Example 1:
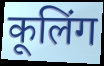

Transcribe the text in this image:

कूलिंग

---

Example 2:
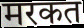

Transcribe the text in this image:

मरकत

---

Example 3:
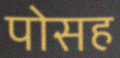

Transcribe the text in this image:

पोसह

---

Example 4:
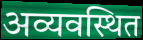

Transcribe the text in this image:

अव्यवस्थित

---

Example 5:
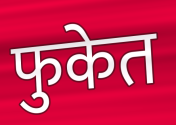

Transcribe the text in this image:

फुकेत